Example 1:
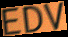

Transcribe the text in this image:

EDV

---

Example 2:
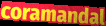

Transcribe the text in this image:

coramandal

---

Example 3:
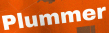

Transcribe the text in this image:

Plummer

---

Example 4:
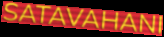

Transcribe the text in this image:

SATAVAHANI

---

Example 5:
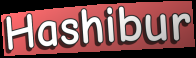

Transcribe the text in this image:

Hashibur